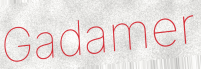
Gadamer